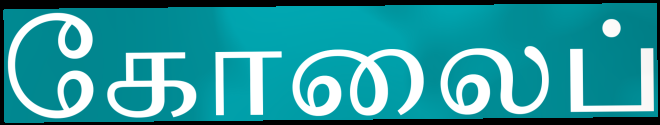
கோலைப்